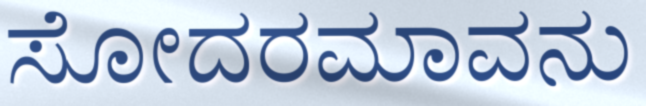
ಸೋದರಮಾವನು